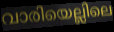
വാരിയെല്ലിലെ